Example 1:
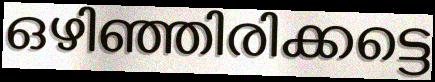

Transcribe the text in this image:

ഒഴിഞ്ഞിരിക്കട്ടെ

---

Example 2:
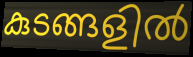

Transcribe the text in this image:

കുടങ്ങളിൽ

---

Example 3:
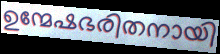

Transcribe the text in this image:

ഉന്മേഷഭരിതനായി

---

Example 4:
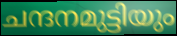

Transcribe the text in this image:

ചന്ദനമുട്ടിയും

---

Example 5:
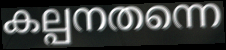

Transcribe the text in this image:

കല്പനതന്നെ